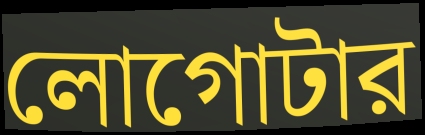
লোগোটার